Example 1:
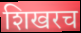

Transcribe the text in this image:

शिखरच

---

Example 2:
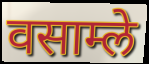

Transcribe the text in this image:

वसाम्ले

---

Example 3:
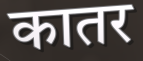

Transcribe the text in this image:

कातर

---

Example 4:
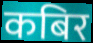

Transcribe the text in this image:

कबिर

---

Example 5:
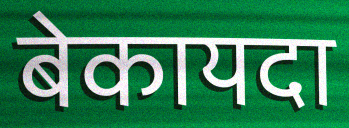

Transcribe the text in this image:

बेकायदा